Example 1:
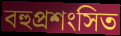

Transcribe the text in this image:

বহুপ্রশংসিত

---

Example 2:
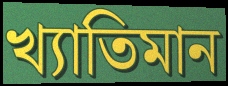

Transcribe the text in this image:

খ্যাতিমান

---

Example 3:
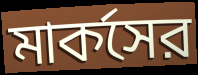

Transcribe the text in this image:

মার্কসের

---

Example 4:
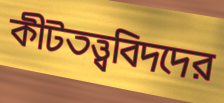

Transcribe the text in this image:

কীটতত্ত্ববিদদের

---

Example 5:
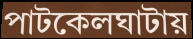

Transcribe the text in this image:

পাটকেলঘাটায়